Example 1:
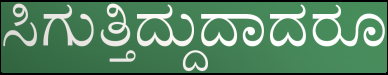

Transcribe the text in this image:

ಸಿಗುತ್ತಿದ್ದುದಾದರೂ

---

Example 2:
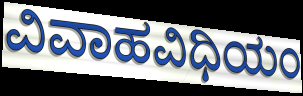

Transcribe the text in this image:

ವಿವಾಹವಿಧಿಯಂ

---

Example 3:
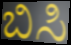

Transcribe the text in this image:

ಬಿಸಿ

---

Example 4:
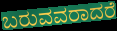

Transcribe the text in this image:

ಬರುವವರಾದರೆ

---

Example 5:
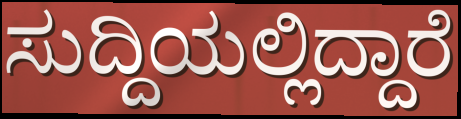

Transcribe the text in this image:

ಸುದ್ದಿಯಲ್ಲಿದ್ದಾರೆ